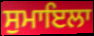
ਸੁਮਾਇਲਾ